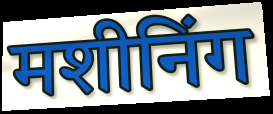
मशीनिंग